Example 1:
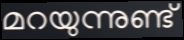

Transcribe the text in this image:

മറയുന്നുണ്ട്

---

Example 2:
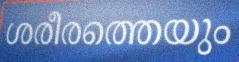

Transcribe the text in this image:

ശരീരത്തെയും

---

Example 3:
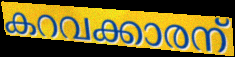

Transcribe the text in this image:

കറവക്കാരന്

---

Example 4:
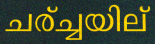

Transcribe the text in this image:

ചര്ച്ചയില്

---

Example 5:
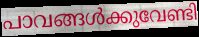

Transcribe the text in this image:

പാവങ്ങൾക്കുവേണ്ടി